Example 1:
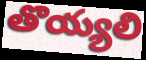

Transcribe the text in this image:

తొయ్యలి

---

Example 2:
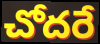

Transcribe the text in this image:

చోదరే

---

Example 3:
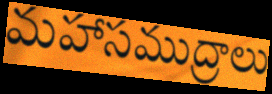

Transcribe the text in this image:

మహాసముద్రాలు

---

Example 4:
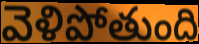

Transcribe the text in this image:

వెళిపోతుంది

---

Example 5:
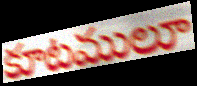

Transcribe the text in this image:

కూటములూ